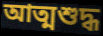
আত্মশুদ্ধ